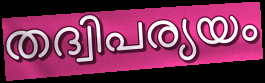
തദ്വിപര്യയം